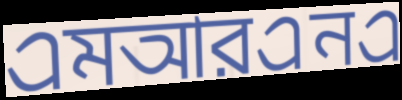
এমআরএনএ